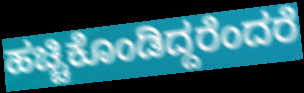
ಹಚ್ಚಿಕೊಂಡಿದ್ದರೆಂದರೆ